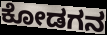
ಕೋಡಗನ